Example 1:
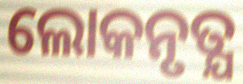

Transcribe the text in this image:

ଲୋକନୃତ୍ଯ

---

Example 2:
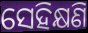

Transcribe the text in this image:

ସେହିକ୍ଷଣି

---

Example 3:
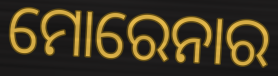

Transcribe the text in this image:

ମୋରେନାର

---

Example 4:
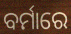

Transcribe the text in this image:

ବର୍ମାରେ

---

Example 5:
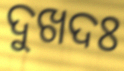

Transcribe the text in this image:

ଦୁଖଦଃ